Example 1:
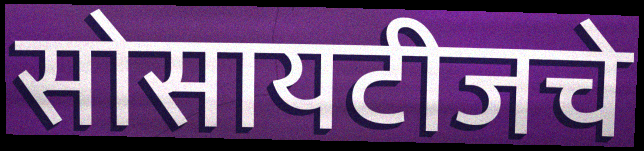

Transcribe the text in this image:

सोसायटीजचे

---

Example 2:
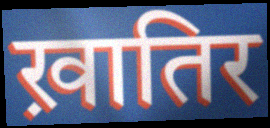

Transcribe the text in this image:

ख़ातिर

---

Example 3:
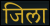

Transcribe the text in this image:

जिला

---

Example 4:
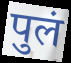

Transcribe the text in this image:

पुलं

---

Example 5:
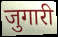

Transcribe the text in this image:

जुगारी